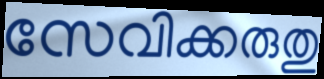
സേവിക്കരുതു